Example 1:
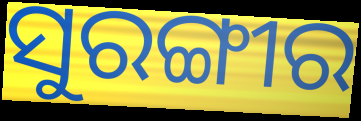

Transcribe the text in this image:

ସୁରଙ୍ଗୀର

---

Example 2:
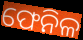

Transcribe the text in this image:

ଫେନିଳ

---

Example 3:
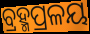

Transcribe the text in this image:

ବ୍ରହ୍ମପ୍ରଳୟ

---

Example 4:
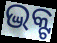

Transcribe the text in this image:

ଦ୍ଭକ୍ଟ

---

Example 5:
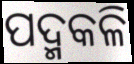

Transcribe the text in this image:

ପଦ୍ମକଳି